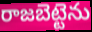
రాజబెట్టెను